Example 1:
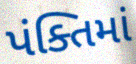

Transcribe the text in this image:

પંક્તિમાં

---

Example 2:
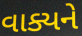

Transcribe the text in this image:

વાક્યને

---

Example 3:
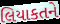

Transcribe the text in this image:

લિયાકતને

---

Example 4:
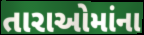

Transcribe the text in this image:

તારાઓમાંના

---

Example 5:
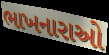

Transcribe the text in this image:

ભાખનારાઓ